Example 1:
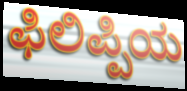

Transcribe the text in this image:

ಫಿಲಿಪ್ಪಿಯ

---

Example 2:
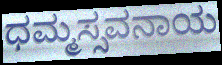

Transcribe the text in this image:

ಧಮ್ಮಸ್ಸವನಾಯ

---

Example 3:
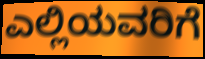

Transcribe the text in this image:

ಎಲ್ಲಿಯವರಿಗೆ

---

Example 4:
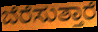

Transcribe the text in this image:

ಬೆರೆಸುತ್ತಾರೆ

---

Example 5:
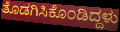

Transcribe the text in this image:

ತೊಡಗಿಸಿಕೊಂಡಿದ್ದಳು